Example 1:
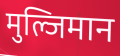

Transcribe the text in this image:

मुल्जिमान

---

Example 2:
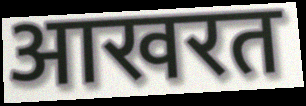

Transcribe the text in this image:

आखरत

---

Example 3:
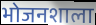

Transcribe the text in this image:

भोजनशाला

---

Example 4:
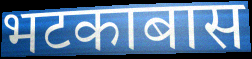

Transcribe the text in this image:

भटकाबास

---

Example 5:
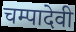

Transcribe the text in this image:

चम्पादेवी